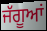
ਜੱਗੂਆਂ